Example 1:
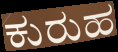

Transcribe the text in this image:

ಕುರುಹ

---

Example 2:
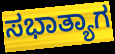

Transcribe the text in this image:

ಸಭಾತ್ಯಾಗ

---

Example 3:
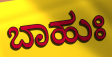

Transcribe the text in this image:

ಬಾಹುಃ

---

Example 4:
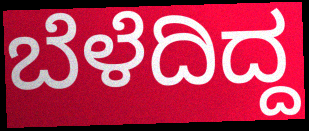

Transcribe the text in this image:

ಬೆಳೆದಿದ್ದ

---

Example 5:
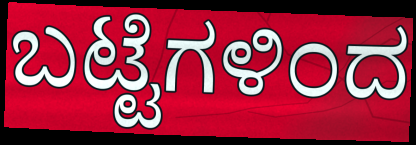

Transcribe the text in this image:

ಬಟ್ಟೆಗಳಿಂದ